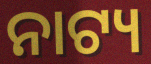
ନାଟ୍ୟ